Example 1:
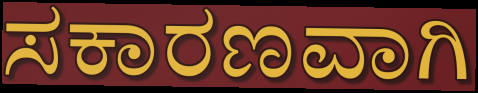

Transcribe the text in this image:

ಸಕಾರಣವಾಗಿ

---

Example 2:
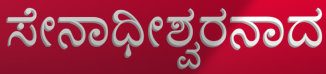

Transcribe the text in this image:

ಸೇನಾಧೀಶ್ವರನಾದ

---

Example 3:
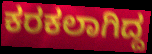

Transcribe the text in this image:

ಕರಕಲಾಗಿದ್ದ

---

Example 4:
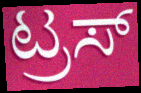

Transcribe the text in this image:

ಟ್ರಸ್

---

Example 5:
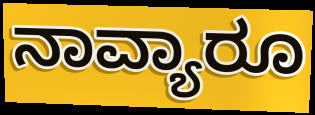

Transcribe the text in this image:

ನಾವ್ಯಾರೂ